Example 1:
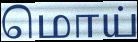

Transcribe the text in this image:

மொய்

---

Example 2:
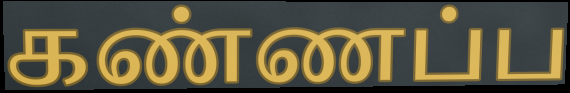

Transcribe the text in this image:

கண்ணப்ப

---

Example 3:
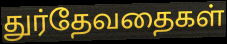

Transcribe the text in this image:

துர்தேவதைகள்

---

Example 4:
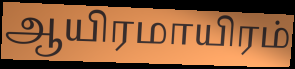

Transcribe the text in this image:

ஆயிரமாயிரம்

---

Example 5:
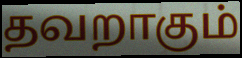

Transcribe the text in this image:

தவறாகும்